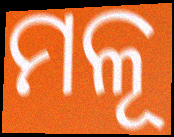
ମଳୂ